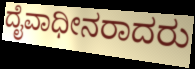
ದೈವಾಧೀನರಾದರು